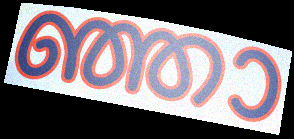
ഞ്ഞാ